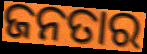
ଜନତାର